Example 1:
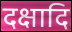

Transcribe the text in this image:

दक्षादि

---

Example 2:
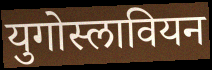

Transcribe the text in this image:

युगोस्लावियन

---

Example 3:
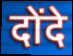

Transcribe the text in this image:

दोंदे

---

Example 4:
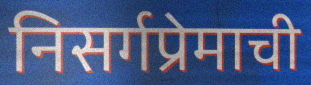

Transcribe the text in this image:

निसर्गप्रेमाची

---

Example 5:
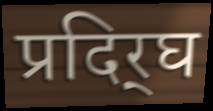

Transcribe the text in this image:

प्रदिर्घ